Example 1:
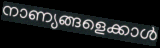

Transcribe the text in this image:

നാണ്യങ്ങളെക്കാൾ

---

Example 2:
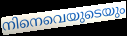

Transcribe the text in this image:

നിനെവെയുടെയും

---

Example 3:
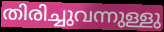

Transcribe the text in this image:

തിരിച്ചുവന്നുള്ളു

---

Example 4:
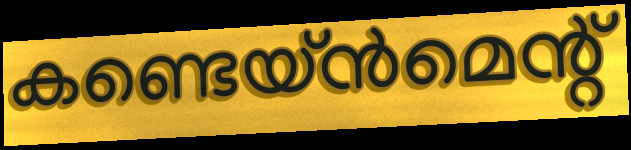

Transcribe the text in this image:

കണ്ടെയ്ൻമെന്റ്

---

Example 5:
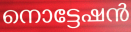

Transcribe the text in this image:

നൊട്ടേഷൻ